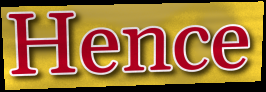
Hence